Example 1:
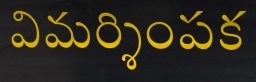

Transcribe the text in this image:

విమర్శింపక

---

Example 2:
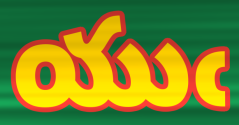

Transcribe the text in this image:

యుఁ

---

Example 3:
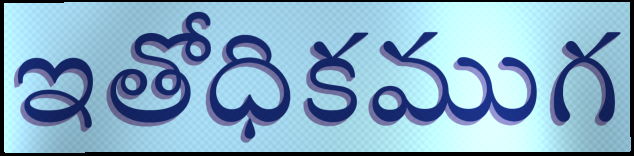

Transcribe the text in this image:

ఇతోధికముగ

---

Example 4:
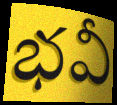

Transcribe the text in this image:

భవీ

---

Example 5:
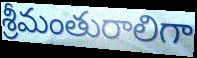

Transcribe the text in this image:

శ్రీమంతురాలిగా